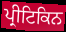
ਪ੍ਰੀਟਿਕਿਨ